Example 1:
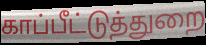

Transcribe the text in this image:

காப்பீட்டுத்துறை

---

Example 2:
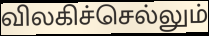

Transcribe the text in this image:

விலகிச்செல்லும்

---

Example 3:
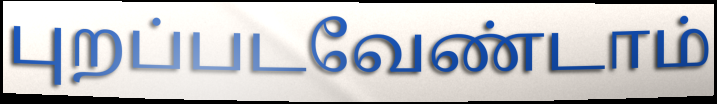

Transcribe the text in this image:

புறப்படவேண்டாம்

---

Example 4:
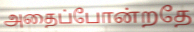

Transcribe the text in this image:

அதைப்போன்றதே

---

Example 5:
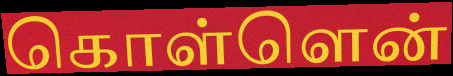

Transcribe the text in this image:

கொள்ளென்